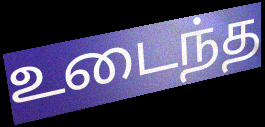
உடைந்த